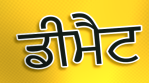
ਡੀਮੈਟ